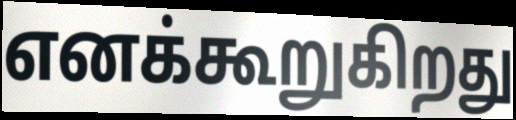
எனக்கூறுகிறது